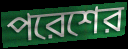
পরেশের